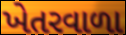
ખેતરવાળા